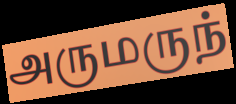
அருமருந்